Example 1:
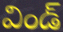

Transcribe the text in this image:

విండ్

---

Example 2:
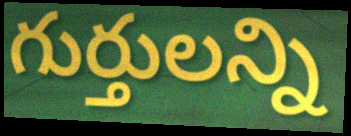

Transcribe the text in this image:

గుర్తులన్ని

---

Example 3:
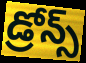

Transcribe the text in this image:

డ్రోన్స్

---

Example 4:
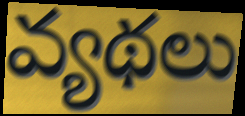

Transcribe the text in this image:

వ్యథలు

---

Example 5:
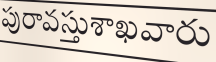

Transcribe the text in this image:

పురావస్తుశాఖవారు